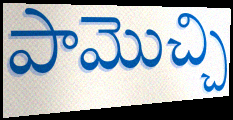
పామొచ్చి